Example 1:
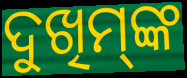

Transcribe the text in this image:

ଦୁଖିମ୍‌ଙ୍କ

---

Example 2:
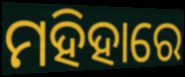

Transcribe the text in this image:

ମହିହାରେ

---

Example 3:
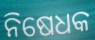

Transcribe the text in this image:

ନିଷେଧକ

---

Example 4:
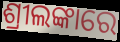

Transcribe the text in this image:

ଶ୍ରୀଲଙ୍କାରେ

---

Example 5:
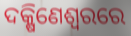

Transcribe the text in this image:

ଦକ୍ଷିଣେଶ୍ୱରରେ